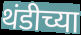
थंडीच्या